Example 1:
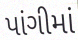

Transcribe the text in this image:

પાંગીમાં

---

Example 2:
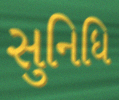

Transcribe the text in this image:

સુનિધિ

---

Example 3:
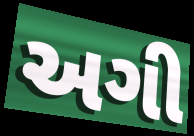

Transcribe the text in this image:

અગી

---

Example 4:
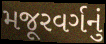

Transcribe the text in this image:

મજૂરવર્ગનું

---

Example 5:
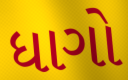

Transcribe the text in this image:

ધાગો